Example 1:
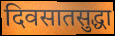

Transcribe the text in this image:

दिवसातसुद्धा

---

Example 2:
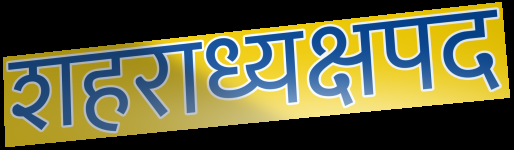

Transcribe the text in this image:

शहराध्यक्षपद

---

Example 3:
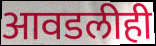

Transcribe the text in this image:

आवडलीही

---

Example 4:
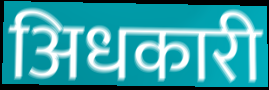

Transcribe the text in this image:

अिधकारी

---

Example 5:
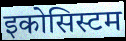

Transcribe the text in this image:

इकोसिस्टम